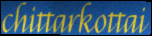
chittarkottai